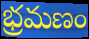
భ్రమణం